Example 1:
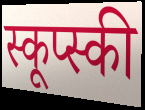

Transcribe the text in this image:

स्कूप्स्की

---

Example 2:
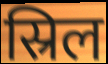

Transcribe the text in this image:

स्रिल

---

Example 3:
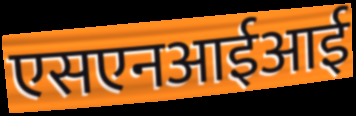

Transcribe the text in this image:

एसएनआईआई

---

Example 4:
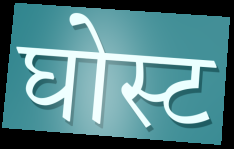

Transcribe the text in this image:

घोस्ट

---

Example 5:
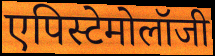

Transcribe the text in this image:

एपिस्टेमोलॉजी